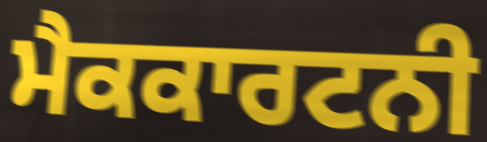
ਮੈਕਕਾਰਟਨੀ